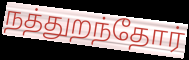
நத்துறந்தோர்